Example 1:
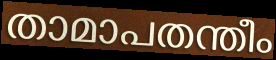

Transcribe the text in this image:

താമാപതന്തീം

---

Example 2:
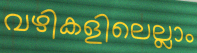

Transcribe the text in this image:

വഴികളിലെല്ലാം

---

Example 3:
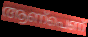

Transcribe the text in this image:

ആണ്പെണ്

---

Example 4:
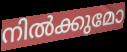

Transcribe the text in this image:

നിൽക്കുമോ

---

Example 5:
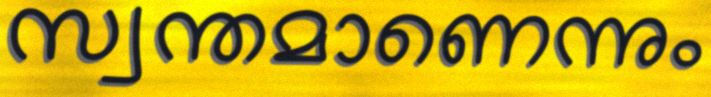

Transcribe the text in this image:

സ്വന്തമാണെന്നും